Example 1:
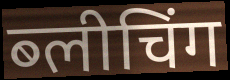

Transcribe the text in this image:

ब्‍लीचिंग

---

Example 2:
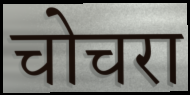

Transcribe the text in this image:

चोचरा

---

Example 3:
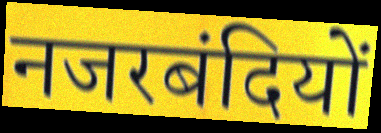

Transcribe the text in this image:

नजरबंदियों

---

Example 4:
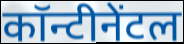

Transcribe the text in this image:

कॉन्टीनेंटल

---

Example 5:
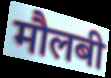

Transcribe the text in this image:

मौलबी